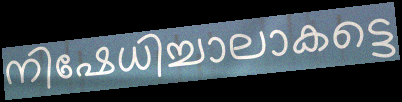
നിഷേധിച്ചാലാകട്ടെ